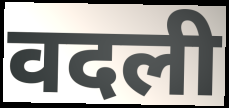
वदली